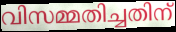
വിസമ്മതിച്ചതിന്